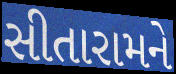
સીતારામને